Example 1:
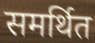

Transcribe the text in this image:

समर्थित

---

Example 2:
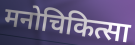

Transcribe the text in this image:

मनोचिकित्सा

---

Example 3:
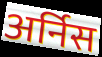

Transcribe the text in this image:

अर्निस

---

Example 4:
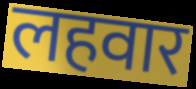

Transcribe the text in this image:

लहवार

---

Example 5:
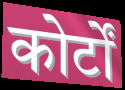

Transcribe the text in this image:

कोर्टों